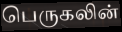
பெருகலின்